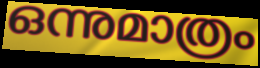
ഒന്നുമാത്രം